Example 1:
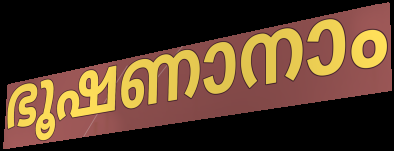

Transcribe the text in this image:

ഭൂഷണാനാം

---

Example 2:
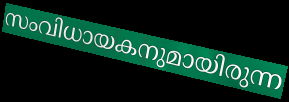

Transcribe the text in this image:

സംവിധായകനുമായിരുന്ന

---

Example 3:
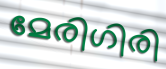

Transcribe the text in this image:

മേരിഗിരി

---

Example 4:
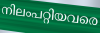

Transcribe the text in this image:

നിലംപറ്റിയവരെ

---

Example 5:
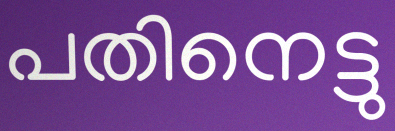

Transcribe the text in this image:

പതിനെട്ടു